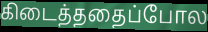
கிடைத்ததைப்போல